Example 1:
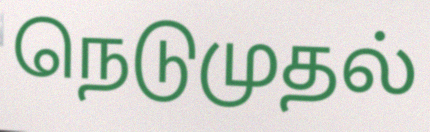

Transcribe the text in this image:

நெடுமுதல்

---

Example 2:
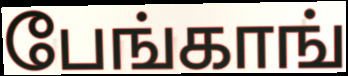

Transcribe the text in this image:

பேங்காங்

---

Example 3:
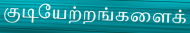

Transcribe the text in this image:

குடியேற்றங்களைக்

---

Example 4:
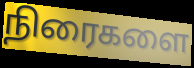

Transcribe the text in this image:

நிரைகளை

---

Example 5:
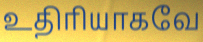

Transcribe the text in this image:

உதிரியாகவே